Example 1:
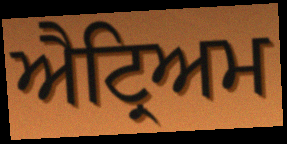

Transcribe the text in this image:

ਐਟ੍ਰਿਅਮ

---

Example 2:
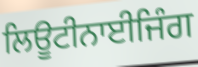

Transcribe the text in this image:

ਲਿਊਟੀਨਾਈਜਿੰਗ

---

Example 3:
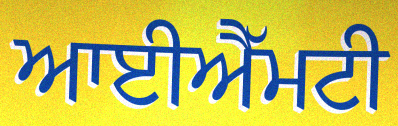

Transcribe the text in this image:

ਆਈਐੱਮਟੀ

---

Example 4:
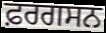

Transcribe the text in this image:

ਫ਼ਰਗਸਨ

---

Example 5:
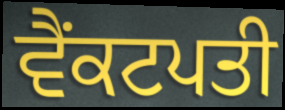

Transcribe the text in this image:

ਵੈਂਕਟਪਤੀ